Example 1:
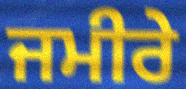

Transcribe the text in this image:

ਜਮੀਰੇ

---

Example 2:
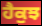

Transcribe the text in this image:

ਹੈਕੁਝ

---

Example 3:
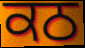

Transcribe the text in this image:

ਕਠ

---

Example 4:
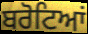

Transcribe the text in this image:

ਬਰੋਟਿਆਂ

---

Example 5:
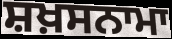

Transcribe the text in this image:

ਸ਼ਖ਼ਸਨਾਮਾ